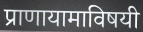
प्राणायामाविषयी